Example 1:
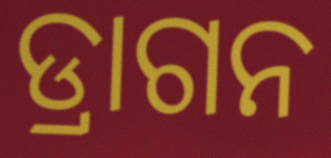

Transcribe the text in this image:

ଡ୍ରାଗନ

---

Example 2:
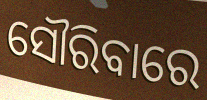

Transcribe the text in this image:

ସୌରିବାରେ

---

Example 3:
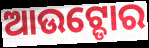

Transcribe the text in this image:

ଆଉଟ୍ଡୋର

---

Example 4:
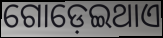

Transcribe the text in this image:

ଗୋଡ଼େଇଥାଏ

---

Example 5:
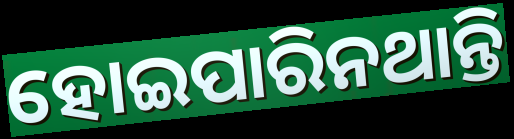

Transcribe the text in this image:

ହୋଇପାରିନଥାନ୍ତି